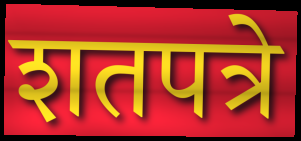
शतपत्रे